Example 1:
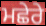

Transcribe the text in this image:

ਮਛੇਰੇ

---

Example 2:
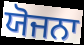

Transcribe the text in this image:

ਯੋਜਨਾ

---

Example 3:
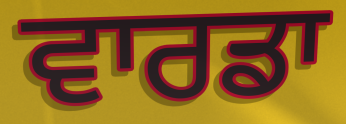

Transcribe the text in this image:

ਵਾਰਡਾ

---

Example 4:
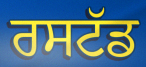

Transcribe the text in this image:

ਰਸਟੱਡ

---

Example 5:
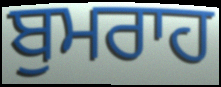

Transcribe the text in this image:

ਬੁਮਰਾਹ